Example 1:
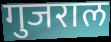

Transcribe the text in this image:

गुजराल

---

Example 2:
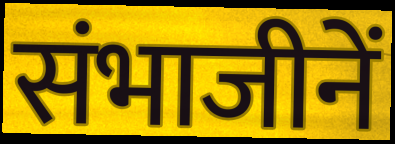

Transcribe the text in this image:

संभाजीनें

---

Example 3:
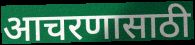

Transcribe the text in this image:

आचरणासाठी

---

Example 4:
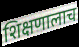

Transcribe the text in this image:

शिक्षणालाच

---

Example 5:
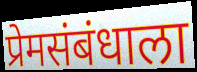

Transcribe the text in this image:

प्रेमसंबंधाला